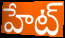
హేట్